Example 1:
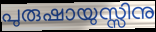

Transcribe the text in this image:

പുരുഷായുസ്സിനു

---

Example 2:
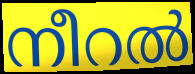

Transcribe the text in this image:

നീറൽ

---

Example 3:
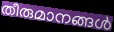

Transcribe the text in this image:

തീരുമാനങ്ങൾ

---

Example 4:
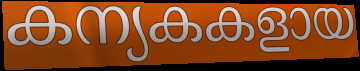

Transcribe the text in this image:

കന്യകകളായ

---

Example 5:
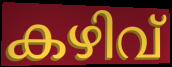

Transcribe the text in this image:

കഴിവ്